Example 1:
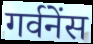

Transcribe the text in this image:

गर्वनेंस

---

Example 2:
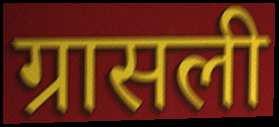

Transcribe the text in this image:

ग्रासली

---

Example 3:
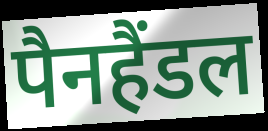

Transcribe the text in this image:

पैनहैंडल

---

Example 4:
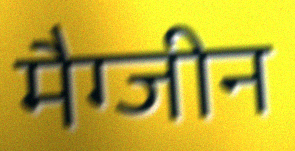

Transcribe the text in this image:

मैग्जीन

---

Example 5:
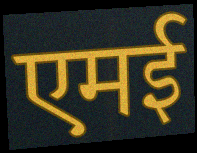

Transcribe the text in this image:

एमई